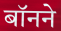
बॉनने